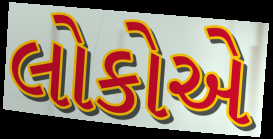
લોકોએ